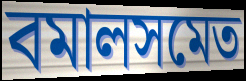
বমালসমেত